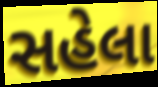
સહેલા